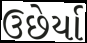
ઉછેર્યા